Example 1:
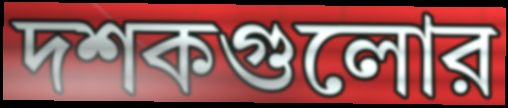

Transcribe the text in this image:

দশকগুলোর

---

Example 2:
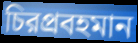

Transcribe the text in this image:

চিরপ্রবহমান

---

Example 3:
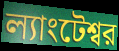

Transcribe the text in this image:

ল্যাংটেশ্বর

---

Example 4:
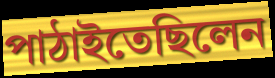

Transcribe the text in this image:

পাঠাইতেছিলেন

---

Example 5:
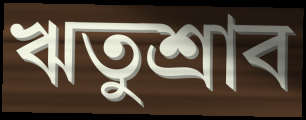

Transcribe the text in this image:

ঋতুশ্রাব